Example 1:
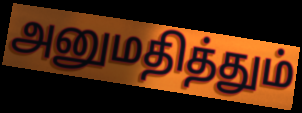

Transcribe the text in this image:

அனுமதித்தும்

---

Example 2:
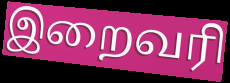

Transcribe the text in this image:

இறைவரி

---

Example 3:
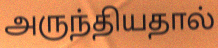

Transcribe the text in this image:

அருந்தியதால்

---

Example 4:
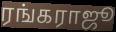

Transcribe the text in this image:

ரங்கராஜூ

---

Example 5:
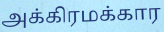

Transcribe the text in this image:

அக்கிரமக்கார